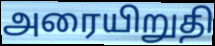
அரையிறுதி